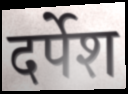
दर्पेश